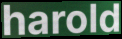
harold